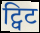
ट्विट